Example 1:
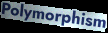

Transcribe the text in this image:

Polymorphism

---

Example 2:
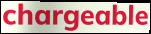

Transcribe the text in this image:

chargeable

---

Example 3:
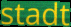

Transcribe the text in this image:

stadt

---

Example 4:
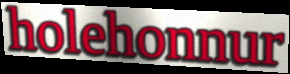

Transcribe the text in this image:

holehonnur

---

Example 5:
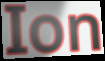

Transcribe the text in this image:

Ion